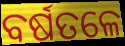
ବର୍ଷତଳେ